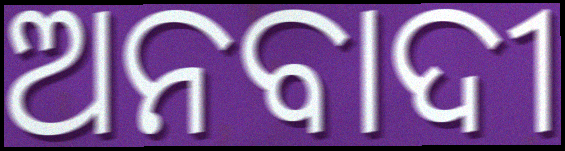
ଅନବାଦୀ